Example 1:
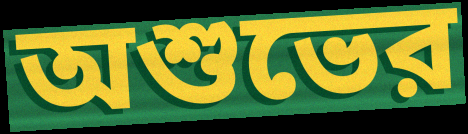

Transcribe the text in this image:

অশুভের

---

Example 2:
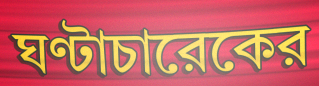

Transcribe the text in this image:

ঘণ্টাচারেকের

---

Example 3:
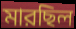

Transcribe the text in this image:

মারছিল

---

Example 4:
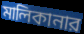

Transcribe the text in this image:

মালিকানার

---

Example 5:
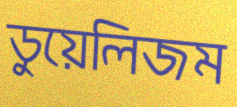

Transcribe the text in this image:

ডুয়েলিজম